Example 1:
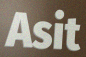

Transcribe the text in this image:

Asit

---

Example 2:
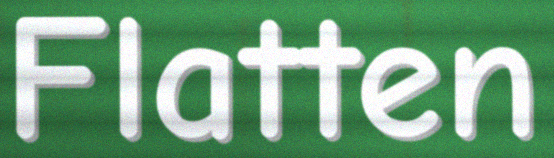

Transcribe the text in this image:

Flatten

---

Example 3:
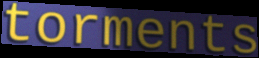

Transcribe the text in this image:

torments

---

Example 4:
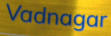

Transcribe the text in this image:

Vadnagar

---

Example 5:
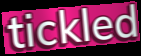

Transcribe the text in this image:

tickled